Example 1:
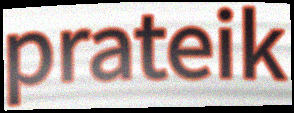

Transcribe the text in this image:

prateik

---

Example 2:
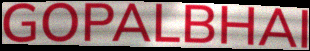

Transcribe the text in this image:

GOPALBHAI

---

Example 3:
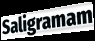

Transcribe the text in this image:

Saligramam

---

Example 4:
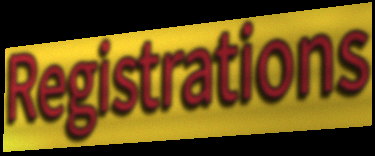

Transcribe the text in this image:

Registrations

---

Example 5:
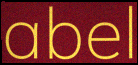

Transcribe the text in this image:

abel